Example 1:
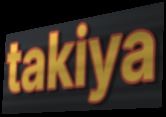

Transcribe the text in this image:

takiya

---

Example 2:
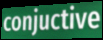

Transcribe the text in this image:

conjuctive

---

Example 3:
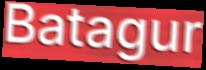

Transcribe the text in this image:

Batagur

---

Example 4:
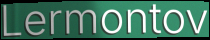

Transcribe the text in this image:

Lermontov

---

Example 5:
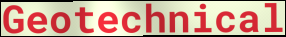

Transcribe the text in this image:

Geotechnical